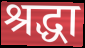
श्रद्धा